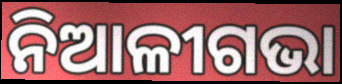
ନିଆଳୀଗଭା